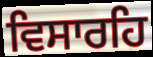
ਵਿਸਾਰਹਿ